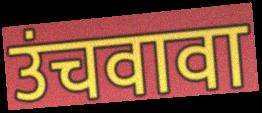
उंचवावा